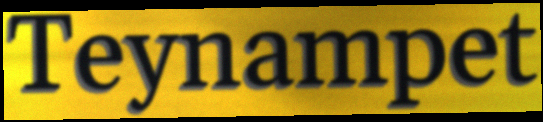
Teynampet